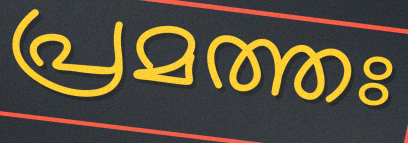
പ്രമത്തഃ